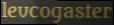
leucogaster